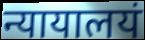
न्यायालयं